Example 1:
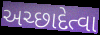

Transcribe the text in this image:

અચ્છાદેત્વા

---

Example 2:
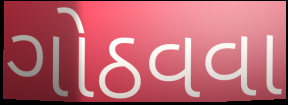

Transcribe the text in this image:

ગોઠવવા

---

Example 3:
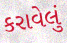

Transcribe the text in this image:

કરાવેલું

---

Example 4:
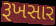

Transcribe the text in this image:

રૂખસાર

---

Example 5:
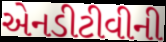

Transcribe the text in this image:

એનડીટીવીની